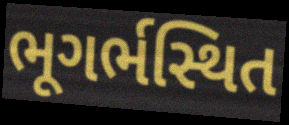
ભૂગર્ભસ્થિત